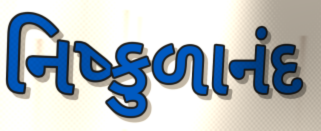
નિષ્કુળાનંદ